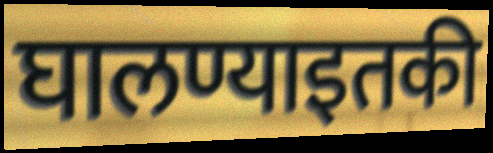
घालण्याइतकी